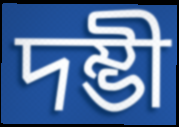
দম্ভী